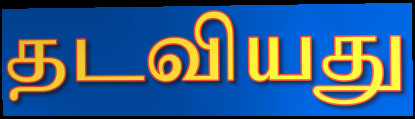
தடவியது